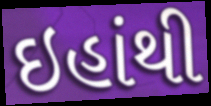
ઇહાંથી